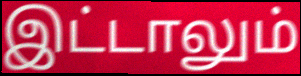
இட்டாலும்